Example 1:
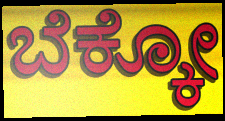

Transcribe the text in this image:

ಬೆಕ್ಕೋ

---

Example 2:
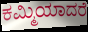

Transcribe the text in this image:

ಕಮ್ಮಿಯಾದರೆ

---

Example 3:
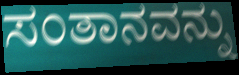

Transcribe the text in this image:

ಸಂತಾನವನ್ನು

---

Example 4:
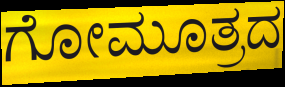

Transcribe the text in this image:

ಗೋಮೂತ್ರದ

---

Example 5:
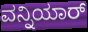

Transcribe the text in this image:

ವನ್ನಿಯಾರ್